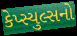
કેપ્સ્યુલ્સનો